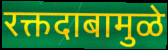
रक्तदाबामुळे